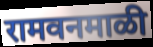
रामवनमाळी